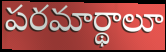
పరమార్థాలూ